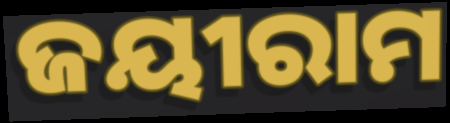
ଜୟୀରାମ